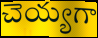
చెయ్యగా